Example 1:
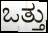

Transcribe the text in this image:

ಒತ್ತು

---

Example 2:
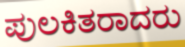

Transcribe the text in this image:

ಪುಲಕಿತರಾದರು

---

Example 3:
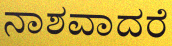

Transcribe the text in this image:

ನಾಶವಾದರೆ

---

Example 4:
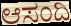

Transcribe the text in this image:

ಆಸಂದಿ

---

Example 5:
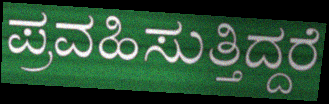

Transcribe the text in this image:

ಪ್ರವಹಿಸುತ್ತಿದ್ದರೆ